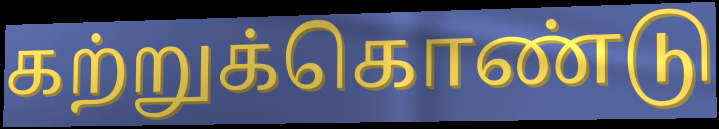
கற்றுக்கொண்டு